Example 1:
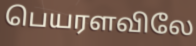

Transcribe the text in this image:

பெயரளவிலே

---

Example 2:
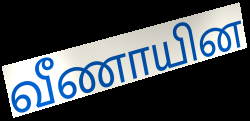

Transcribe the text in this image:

வீணாயின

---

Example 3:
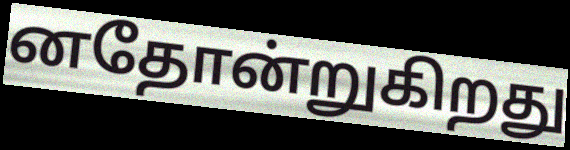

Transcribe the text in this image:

னதோன்றுகிறது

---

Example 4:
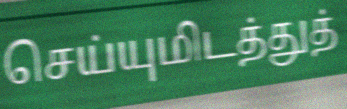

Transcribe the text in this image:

செய்யுமிடத்துத்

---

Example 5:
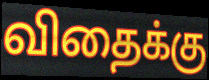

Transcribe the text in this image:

விதைக்கு